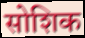
सोशिक